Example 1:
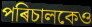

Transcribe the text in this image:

পৰিচালকেও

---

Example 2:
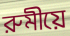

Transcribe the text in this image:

ৰুমীয়ে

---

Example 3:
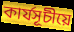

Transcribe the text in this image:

কাৰ্যসূচীয়ে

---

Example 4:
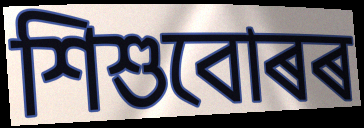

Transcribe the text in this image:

শিশুবোৰৰ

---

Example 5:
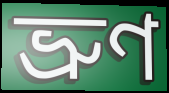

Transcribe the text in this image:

ভ্ৰুণ